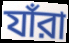
যাঁরা